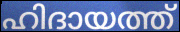
ഹിദായത്ത്